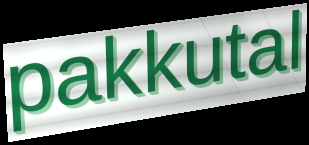
pakkutal